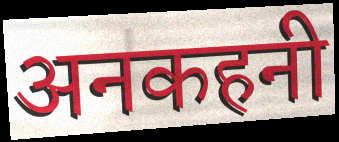
अनकहनी